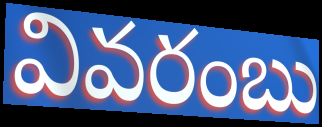
వివరంబు